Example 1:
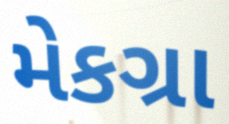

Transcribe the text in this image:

મેકગ્રા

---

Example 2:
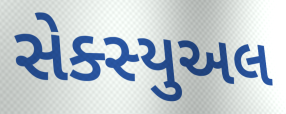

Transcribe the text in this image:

સેક્સ્યુઅલ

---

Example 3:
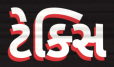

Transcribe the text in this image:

ટેક્સિ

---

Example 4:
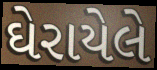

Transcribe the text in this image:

ઘેરાયેલે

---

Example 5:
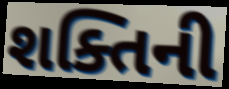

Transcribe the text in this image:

શક્તિની